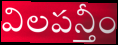
విలపన్తీం